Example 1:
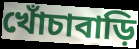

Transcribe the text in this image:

খোঁচাবাড়ি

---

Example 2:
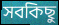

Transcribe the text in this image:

সবকিছু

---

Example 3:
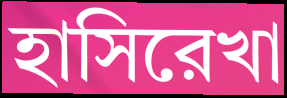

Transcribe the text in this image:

হাসিরেখা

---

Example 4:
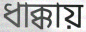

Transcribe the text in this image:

ধাক্কায়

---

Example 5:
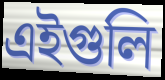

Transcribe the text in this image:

এইগুলি